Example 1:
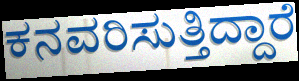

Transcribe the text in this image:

ಕನವರಿಸುತ್ತಿದ್ದಾರೆ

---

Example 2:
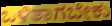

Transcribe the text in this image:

ಒಳಿತಾಗಬೇಕು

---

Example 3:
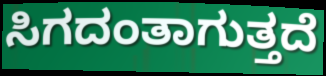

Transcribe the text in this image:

ಸಿಗದಂತಾಗುತ್ತದೆ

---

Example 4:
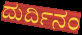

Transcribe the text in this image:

ದುರ್ದಿನಂ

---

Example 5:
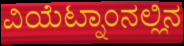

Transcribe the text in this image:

ವಿಯೆಟ್ನಾಂನಲ್ಲಿನ